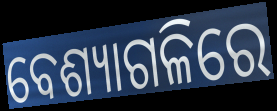
ବେଶ୍ୟାଗଳିରେ